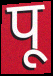
पू